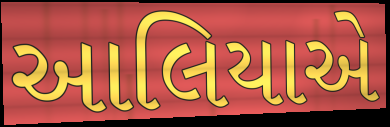
આલિયાએ